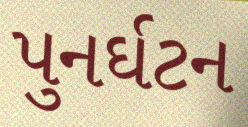
પુનર્ઘટન